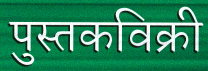
पुस्तकविक्री